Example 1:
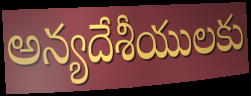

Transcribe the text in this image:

అన్యదేశీయులకు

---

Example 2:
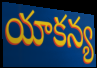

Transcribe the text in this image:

యాకన్య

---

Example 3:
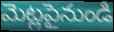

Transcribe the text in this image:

మెట్లపైనుండి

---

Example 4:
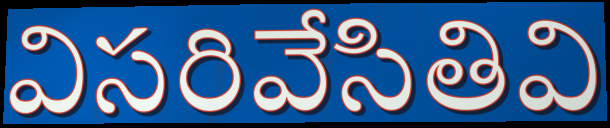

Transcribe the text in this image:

విసరివేసితివి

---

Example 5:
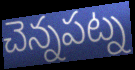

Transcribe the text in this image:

చెన్నపట్న